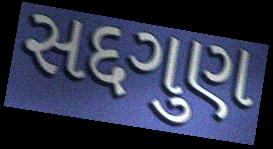
સદ્દગુણ